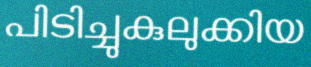
പിടിച്ചുകുലുക്കിയ